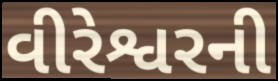
વીરેશ્વરની